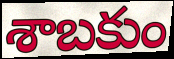
శాబకుం